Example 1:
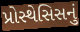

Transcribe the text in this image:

પ્રોસ્થેસિસનું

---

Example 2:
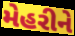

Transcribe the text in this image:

મેહરીને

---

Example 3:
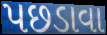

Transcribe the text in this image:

પછડાવા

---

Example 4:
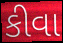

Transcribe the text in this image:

કીવા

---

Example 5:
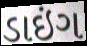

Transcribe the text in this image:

ડાઇંગ